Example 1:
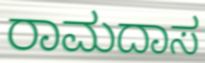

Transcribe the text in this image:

ರಾಮದಾಸ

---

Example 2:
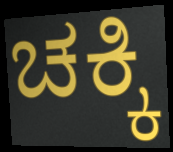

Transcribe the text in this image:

ಚಕ್ಕಿ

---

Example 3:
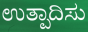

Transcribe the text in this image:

ಉತ್ಪಾದಿಸು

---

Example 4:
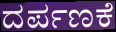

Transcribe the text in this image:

ದರ್ಪಣಕೆ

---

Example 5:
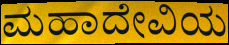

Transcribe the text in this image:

ಮಹಾದೇವಿಯ